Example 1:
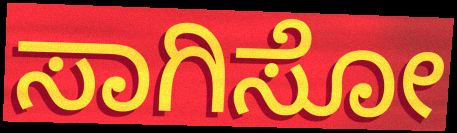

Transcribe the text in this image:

ಸಾಗಿಸೋ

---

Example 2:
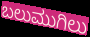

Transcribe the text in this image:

ಬಲುಮುಗಿಲು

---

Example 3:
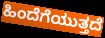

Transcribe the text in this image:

ಹಿಂದೆಗೆಯುತ್ತದೆ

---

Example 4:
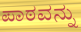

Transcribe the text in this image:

ಪಾಠವನ್ನು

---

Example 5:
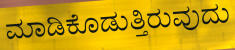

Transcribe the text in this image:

ಮಾಡಿಕೊಡುತ್ತಿರುವುದು